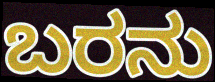
ಬರನು